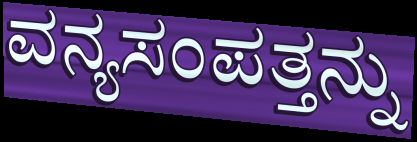
ವನ್ಯಸಂಪತ್ತನ್ನು